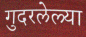
गुदरलेल्या